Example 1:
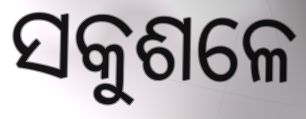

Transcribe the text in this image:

ସକୁଶଳେ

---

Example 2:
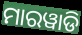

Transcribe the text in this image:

ମାରୱାଡି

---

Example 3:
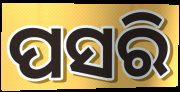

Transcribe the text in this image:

ପସରି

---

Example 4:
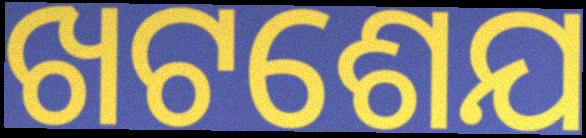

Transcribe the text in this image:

ଖଟଶେଯ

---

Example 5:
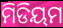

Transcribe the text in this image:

ମିଡିୟମ